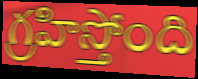
గ్రహిస్తోంది